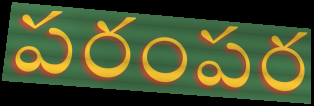
పరంపర